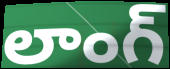
లాంగ్